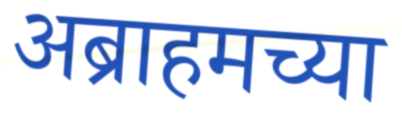
अब्राहमच्या